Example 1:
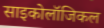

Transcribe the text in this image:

साइकोलॉजिकल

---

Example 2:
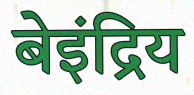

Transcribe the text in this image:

बेइंद्रिय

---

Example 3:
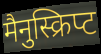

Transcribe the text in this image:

मैनुस्क्रिप्ट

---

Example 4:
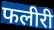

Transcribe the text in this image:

फलीरी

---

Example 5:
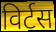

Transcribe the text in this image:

विर्टस